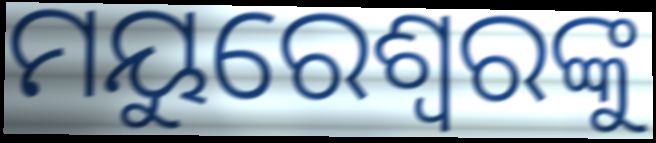
ମୟୁରେଶ୍ବରଙ୍କୁ